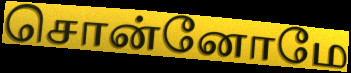
சொன்னோமே